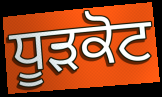
ਧੂੜਕੋਟ